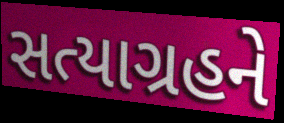
સત્યાગ્રહને